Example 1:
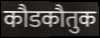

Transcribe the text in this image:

कौडकौतुक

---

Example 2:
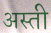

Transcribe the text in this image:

अस्ती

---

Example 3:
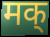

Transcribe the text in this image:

मक्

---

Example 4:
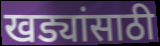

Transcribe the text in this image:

खड्यांसाठी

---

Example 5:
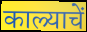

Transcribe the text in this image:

काल्याचें